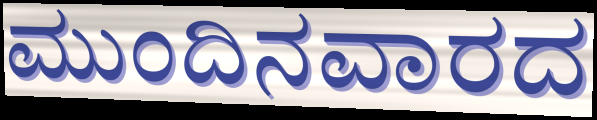
ಮುಂದಿನವಾರದ